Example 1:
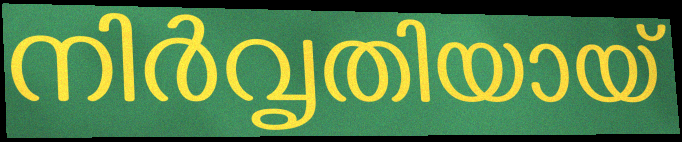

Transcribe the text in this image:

നിർവൃതിയായ്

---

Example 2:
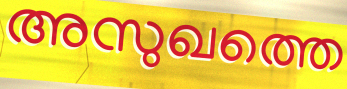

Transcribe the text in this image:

അസുഖത്തെ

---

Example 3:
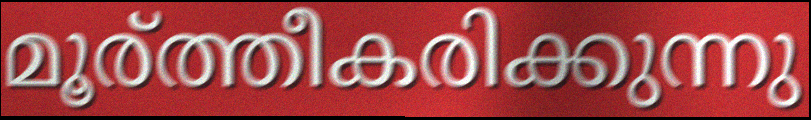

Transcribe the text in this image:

മൂര്ത്തീകരിക്കുന്നു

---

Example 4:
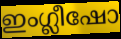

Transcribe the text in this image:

ഇംഗ്ലീഷോ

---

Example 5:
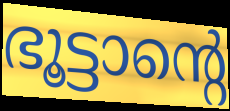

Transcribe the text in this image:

ഭൂട്ടാന്റെ